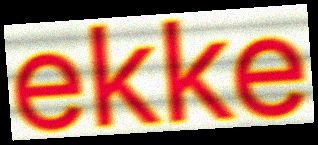
ekke